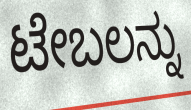
ಟೇಬಲನ್ನು